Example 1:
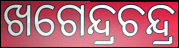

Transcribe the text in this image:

ଖଗେନ୍ଦ୍ରଚନ୍ଦ୍ର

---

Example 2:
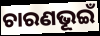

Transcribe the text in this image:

ଚାରଣଭୂଇଁ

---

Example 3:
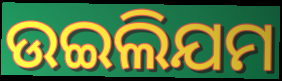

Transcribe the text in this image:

ଉଇଲିଯମ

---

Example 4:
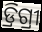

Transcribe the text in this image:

ଡ୍ରିଗ୍ରୀ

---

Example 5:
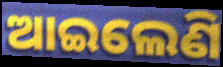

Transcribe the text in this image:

ଆଇଲେଣି